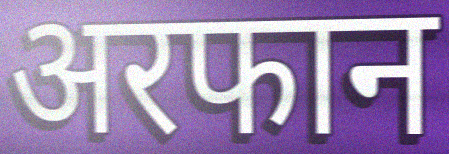
अरफान